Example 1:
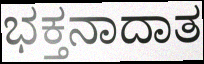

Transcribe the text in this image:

ಭಕ್ತನಾದಾತ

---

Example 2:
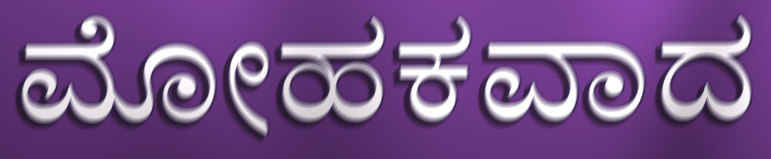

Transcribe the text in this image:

ಮೋಹಕವಾದ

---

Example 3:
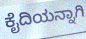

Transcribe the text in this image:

ಕೈದಿಯನ್ನಾಗಿ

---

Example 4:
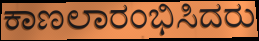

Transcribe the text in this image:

ಕಾಣಲಾರಂಭಿಸಿದರು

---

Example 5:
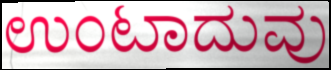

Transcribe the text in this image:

ಉಂಟಾದುವು